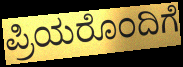
ಪ್ರಿಯರೊಂದಿಗೆ